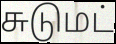
சுடுமட்